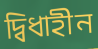
দ্বিধাহীন